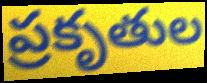
ప్రకృతుల